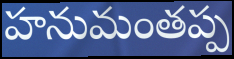
హనుమంతప్ప